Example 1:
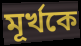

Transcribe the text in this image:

মূর্খকে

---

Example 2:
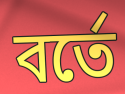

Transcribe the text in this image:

বর্তে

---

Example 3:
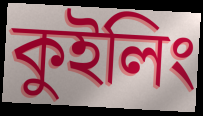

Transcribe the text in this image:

কুইলিং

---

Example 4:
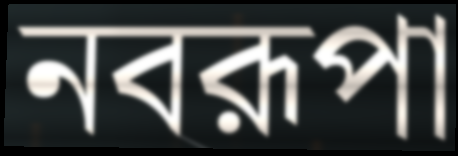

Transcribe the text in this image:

নবরূপা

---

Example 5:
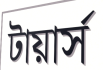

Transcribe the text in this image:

টায়ার্স